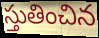
స్తుతించిన